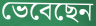
ভেবেছেন